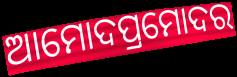
ଆମୋଦପ୍ରମୋଦର